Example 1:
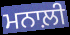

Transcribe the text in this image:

ਮਨਾਲ਼ੀ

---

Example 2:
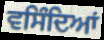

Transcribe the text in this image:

ਵਸਿੰਦਿਆਂ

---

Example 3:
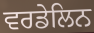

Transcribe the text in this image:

ਵਰਡੇਲਿਨ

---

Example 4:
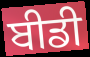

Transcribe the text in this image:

ਬੀਡੀ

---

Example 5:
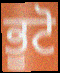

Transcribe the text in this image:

ਭੂਟੋ